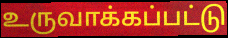
உருவாக்கப்பட்டு